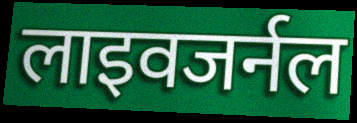
लाइवजर्नल